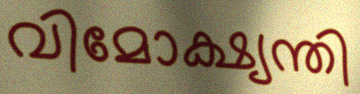
വിമോക്ഷ്യന്തി